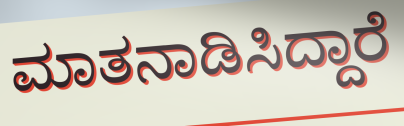
ಮಾತನಾಡಿಸಿದ್ದಾರೆ